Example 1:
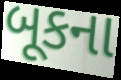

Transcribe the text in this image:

બૂકના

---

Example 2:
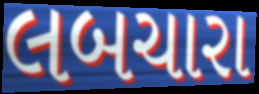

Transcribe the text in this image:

લબચારા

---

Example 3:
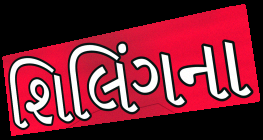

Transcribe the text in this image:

શિલિંગના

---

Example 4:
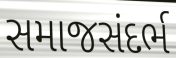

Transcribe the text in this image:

સમાજસંદર્ભ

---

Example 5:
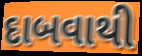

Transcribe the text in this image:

દાબવાથી